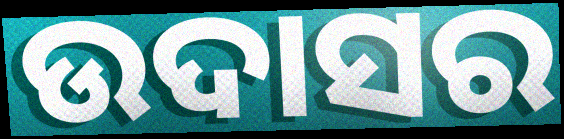
ଉଦାସର